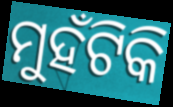
ମୁହଁଟିକି